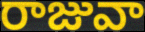
రాజువా